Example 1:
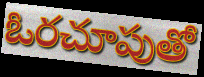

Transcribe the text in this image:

ఓరచూపుతో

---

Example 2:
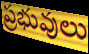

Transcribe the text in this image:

ప్రభువులు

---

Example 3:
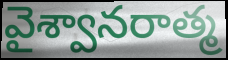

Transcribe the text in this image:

వైశ్వానరాత్మ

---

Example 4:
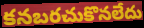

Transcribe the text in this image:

కనబరచుకొనలేదు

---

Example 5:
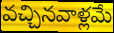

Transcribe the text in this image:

వచ్చినవాళ్లమే